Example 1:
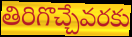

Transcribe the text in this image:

తిరిగొచ్చేవరకు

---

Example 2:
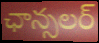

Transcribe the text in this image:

ఛాన్సలర్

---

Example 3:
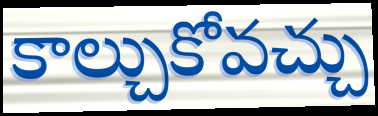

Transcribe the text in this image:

కాల్చుకోవచ్చు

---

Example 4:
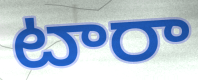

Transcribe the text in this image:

టారా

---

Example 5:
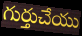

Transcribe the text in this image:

గుర్తుచేయు